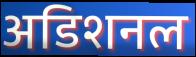
अडिशनल